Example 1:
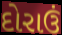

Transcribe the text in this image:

દોરાઉં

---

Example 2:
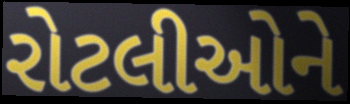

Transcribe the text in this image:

રોટલીઓને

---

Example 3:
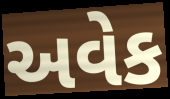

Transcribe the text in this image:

અવેક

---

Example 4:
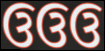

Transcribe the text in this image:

ઉઉઉ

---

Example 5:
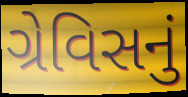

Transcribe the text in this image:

ગ્રેવિસનું